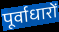
पूर्वाधारों